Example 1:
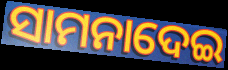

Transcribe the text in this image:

ସାମନାଦେଇ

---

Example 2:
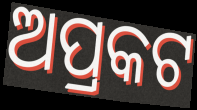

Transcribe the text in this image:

ଅପ୍ରକଟ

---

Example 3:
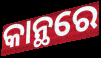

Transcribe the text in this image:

କାନ୍ଥରେ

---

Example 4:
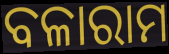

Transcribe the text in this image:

ବଳାରାମ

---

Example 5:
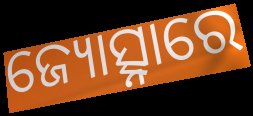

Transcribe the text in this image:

ଜ୍ୟୋତ୍ସ୍ନାରେ